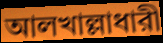
আলখাল্লাধারী